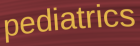
pediatrics